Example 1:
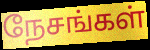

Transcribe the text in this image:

நேசங்கள்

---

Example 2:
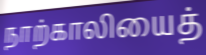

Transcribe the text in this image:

நாற்காலியைத்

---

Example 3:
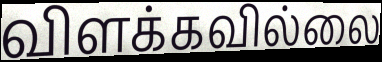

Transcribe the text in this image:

விளக்கவில்லை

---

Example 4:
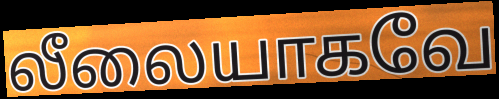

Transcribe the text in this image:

லீலையாகவே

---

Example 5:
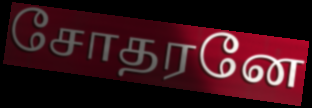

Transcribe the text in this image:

சோதரனே